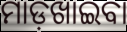
ମାଡ଼ଖାଇବା